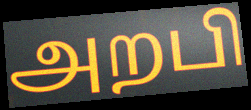
அறபி